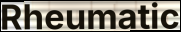
Rheumatic